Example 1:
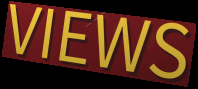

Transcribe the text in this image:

VIEWS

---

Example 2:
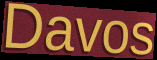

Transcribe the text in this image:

Davos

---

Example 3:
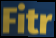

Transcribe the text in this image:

Fitr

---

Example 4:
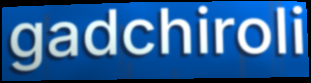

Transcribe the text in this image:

gadchiroli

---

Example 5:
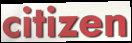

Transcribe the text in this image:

citizen